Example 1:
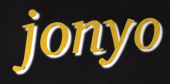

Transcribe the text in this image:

jonyo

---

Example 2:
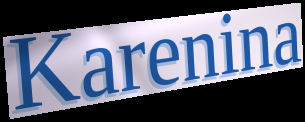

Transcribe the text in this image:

Karenina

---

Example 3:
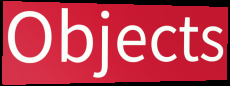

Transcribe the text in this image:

Objects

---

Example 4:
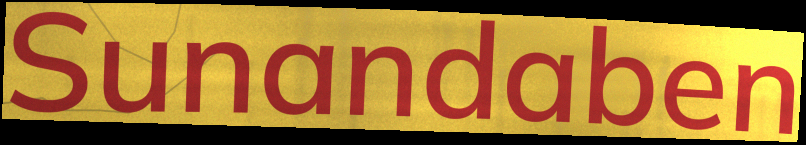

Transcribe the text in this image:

Sunandaben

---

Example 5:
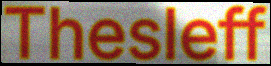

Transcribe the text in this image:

Thesleff